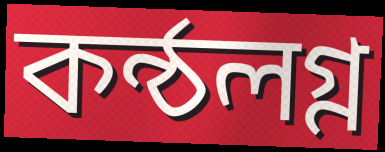
কন্ঠলগ্ন